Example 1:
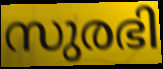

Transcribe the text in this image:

സുരഭി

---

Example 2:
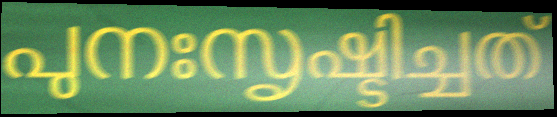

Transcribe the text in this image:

പുനഃസൃഷ്ടിച്ചത്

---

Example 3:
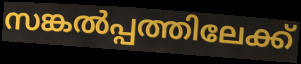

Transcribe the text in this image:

സങ്കൽപ്പത്തിലേക്ക്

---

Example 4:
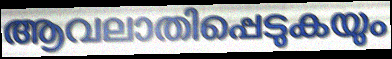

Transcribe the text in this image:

ആവലാതിപ്പെടുകയും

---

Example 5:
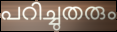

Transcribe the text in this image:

പറിച്ചുതരും